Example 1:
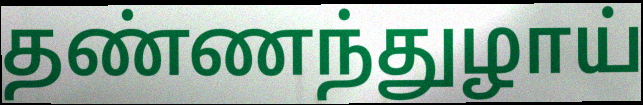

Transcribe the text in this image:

தண்ணந்துழாய்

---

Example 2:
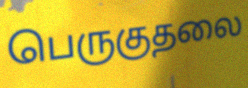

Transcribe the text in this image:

பெருகுதலை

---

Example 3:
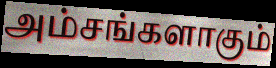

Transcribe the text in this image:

அம்சங்களாகும்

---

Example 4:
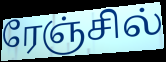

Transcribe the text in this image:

ரேஞ்சில்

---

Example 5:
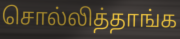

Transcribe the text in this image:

சொல்லித்தாங்க